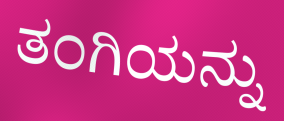
ತಂಗಿಯನ್ನು